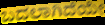
ಬದಲಾಗಿದೆಯೇ